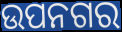
ଉପନଗର